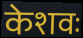
केशवः